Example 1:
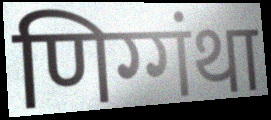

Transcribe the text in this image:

णिग्गंथा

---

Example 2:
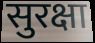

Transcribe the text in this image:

सुरक्षा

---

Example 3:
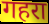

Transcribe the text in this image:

गहरा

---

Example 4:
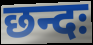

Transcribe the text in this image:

छन्दः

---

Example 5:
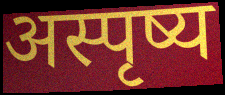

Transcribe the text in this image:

अस्पृष्य